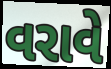
વરાવે